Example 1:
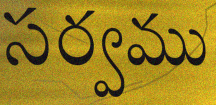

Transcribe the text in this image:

సర్వము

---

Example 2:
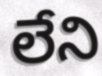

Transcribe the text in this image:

లేని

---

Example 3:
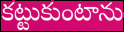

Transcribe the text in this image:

కట్టుకుంటాను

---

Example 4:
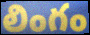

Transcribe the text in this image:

లింగం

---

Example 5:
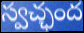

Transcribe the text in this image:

స్వచ్ఛంద